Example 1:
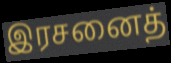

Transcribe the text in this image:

இரசனைத்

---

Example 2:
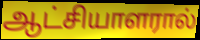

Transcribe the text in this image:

ஆட்சியாளரால்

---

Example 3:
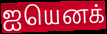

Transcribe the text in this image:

ஐயெனக்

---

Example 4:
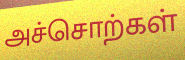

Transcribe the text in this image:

அச்சொற்கள்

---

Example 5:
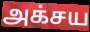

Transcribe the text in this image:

அக்சய